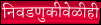
निवडणुकीवेळीही